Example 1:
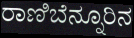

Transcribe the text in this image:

ರಾಣಿಬೆನ್ನೂರಿನ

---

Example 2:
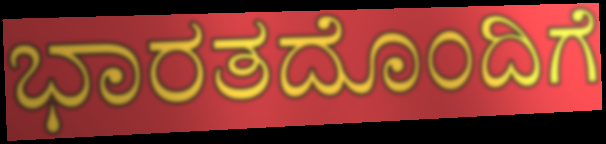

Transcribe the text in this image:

ಭಾರತದೊಂದಿಗೆ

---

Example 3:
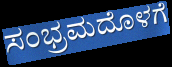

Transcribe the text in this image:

ಸಂಭ್ರಮದೊಳಗೆ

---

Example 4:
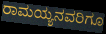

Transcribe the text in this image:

ರಾಮಯ್ಯನವರಿಗೂ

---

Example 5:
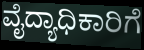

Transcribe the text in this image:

ವೈದ್ಯಾಧಿಕಾರಿಗೆ